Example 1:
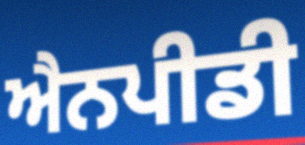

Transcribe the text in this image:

ਐਨਪੀਡੀ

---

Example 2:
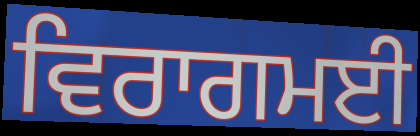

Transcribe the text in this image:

ਵਿਰਾਗਮਈ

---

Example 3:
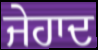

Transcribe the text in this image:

ਜੇਹਾਦ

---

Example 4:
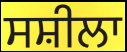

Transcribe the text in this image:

ਸਸ਼ੀਲਾ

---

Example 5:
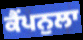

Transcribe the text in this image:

ਕੈਂਪਨੁਲਾ